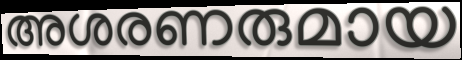
അശരണരുമായ